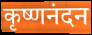
कृष्णनंदन